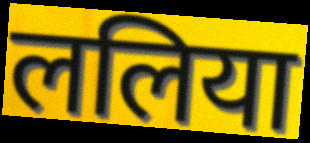
ललिया